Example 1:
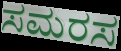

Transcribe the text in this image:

ಸಮರಸ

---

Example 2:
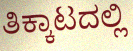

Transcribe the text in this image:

ತಿಕ್ಕಾಟದಲ್ಲಿ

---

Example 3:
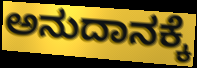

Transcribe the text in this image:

ಅನುದಾನಕ್ಕೆ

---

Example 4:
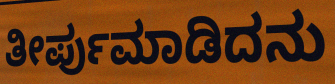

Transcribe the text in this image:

ತೀರ್ಪುಮಾಡಿದನು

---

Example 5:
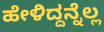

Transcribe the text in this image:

ಹೇಳಿದ್ದನ್ನೆಲ್ಲ